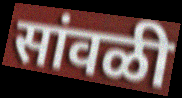
सांवळी